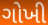
ગોખી